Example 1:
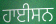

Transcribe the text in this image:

ਹਾਈਸਨ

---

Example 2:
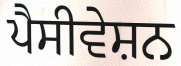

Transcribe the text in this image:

ਪੈਸੀਵੇਸ਼ਨ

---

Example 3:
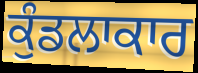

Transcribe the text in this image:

ਕੁੰਡਲਾਕਾਰ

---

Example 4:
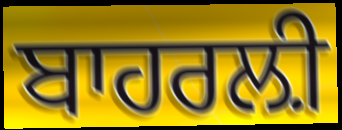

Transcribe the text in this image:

ਬਾਹਰਲ਼ੀ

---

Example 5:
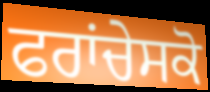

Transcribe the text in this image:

ਫਰਾਂਚੇਸਕੋ